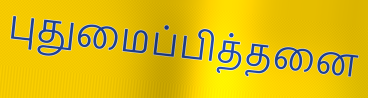
புதுமைப்பித்தனை